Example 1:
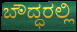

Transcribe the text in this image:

ಬೌದ್ಧರಲ್ಲಿ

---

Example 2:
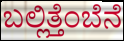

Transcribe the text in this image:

ಬಲ್ಲಿತ್ತೆಂಬೆನೆ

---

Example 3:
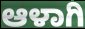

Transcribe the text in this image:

ಆಳಾಗಿ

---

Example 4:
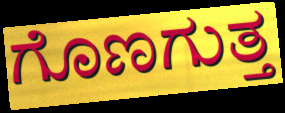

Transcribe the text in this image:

ಗೊಣಗುತ್ತ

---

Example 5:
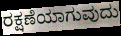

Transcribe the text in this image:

ರಕ್ಷಣೆಯಾಗುವುದು